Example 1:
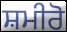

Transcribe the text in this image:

ਸ਼ਮੀਰੋ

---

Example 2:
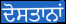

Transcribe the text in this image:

ਦੋਸਤਾਨਾਂ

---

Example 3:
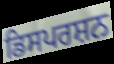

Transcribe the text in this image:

ਡਿਸਪਰਸ਼ਨ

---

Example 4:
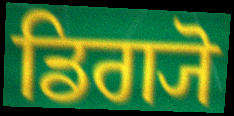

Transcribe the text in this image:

ਡਿਗ੍ਯੋ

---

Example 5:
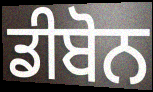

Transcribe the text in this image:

ਡੀਬੋਨ